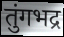
तुंगभद्र